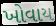
ખોવાય